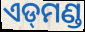
ଏଡ୍‌ମଣ୍ଡ